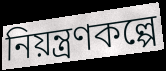
নিয়ন্ত্রণকল্পে